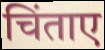
चिंताए